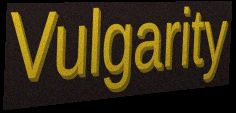
Vulgarity